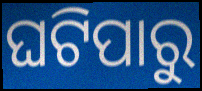
ଘଟିପାରୁ